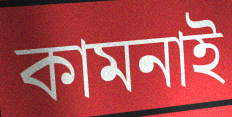
কামনাই